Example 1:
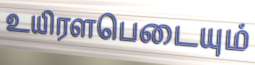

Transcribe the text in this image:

உயிரளபெடையும்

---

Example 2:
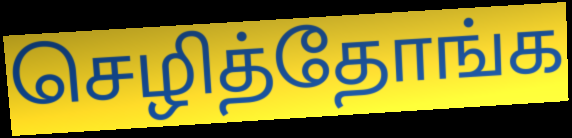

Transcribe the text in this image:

செழித்தோங்க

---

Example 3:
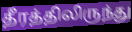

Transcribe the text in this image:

தீரத்திலிருந்து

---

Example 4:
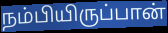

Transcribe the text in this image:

நம்பியிருப்பான்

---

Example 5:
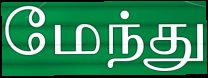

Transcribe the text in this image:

மேந்து